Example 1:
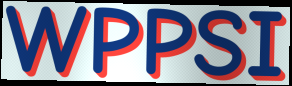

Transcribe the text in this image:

WPPSI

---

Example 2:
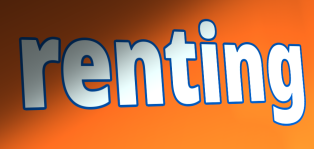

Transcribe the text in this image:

renting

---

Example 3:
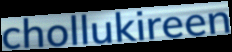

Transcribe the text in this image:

chollukireen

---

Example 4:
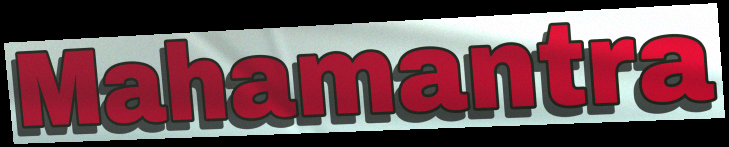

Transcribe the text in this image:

Mahamantra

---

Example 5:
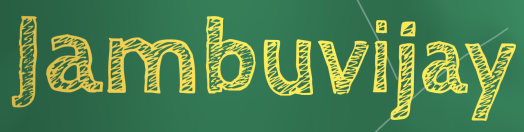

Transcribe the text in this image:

Jambuvijay